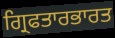
ਗ੍ਰਿਫਤਾਰਭਾਰਤ